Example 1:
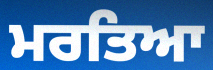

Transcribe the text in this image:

ਮਰਤਿਆ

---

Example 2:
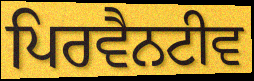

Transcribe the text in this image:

ਪਿਰਵੈਨਟੀਵ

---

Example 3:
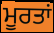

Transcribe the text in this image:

ਮੂਰਤਾਂ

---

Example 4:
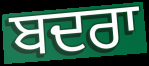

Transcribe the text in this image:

ਬਦਰਾ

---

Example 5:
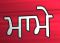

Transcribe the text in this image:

ਮਾਮੇ